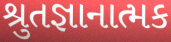
શ્રુતજ્ઞાનાત્મક